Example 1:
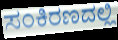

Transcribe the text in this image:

ಸಂಕಿರಣದಲ್ಲಿ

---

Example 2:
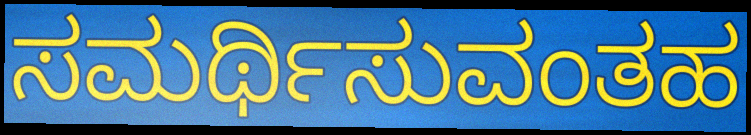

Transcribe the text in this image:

ಸಮರ್ಥಿಸುವಂತಹ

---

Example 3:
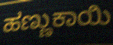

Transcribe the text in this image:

ಹಣ್ಣುಕಾಯಿ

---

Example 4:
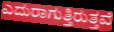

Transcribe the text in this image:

ಎದುರಾಗುತ್ತಿರುತ್ತವೆ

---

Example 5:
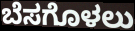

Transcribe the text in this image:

ಬೆಸಗೊಳಲು